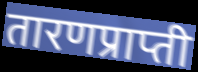
तारणप्राप्ती